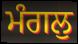
ਮੰਗਲੁ